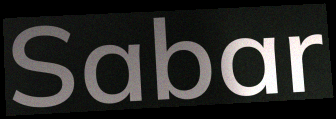
Sabar